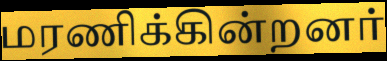
மரணிக்கின்றனர்